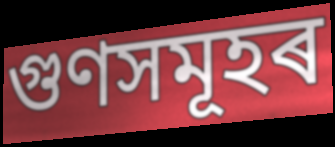
গুণসমূহৰ